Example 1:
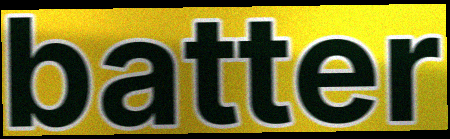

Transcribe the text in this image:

batter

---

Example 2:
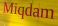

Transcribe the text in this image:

Miqdam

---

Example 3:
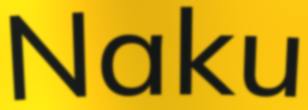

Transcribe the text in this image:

Naku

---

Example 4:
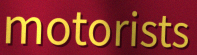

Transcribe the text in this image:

motorists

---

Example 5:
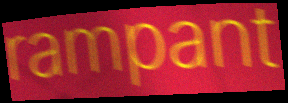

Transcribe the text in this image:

rampant